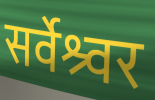
सर्वेश्र्वर